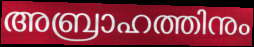
അബ്രാഹത്തിനും